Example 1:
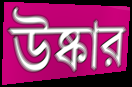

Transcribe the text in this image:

উষ্কার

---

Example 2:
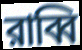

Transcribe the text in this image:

রাব্বি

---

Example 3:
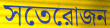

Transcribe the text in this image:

সতেরোজন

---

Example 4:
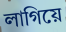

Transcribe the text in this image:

লাগিয়ে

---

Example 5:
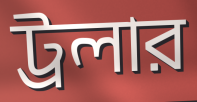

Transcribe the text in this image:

ট্রলার